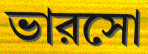
ভারসো